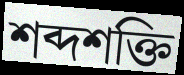
শব্দশক্তি